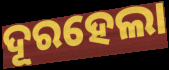
ଦୂରହେଲା